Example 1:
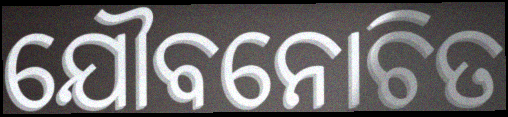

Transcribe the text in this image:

ଯୌବନୋଚିତ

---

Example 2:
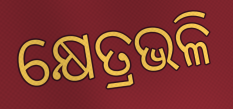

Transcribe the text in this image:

କ୍ଷେତ୍ରଭଳି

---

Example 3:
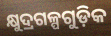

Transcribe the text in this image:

କ୍ଷୁଦ୍ରଗଳ୍ପଗୁଡ଼ିକ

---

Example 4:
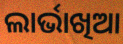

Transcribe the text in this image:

ଲାର୍ଭାଖିଆ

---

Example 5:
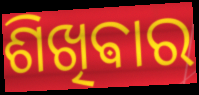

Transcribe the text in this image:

ଶିଖିଵାର